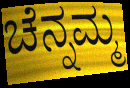
ಚೆನ್ನಮ್ಮ